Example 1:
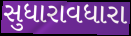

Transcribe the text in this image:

સુધારાવધારા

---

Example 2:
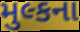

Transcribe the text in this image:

મુલ્કના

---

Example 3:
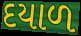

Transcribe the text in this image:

દયાળ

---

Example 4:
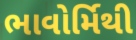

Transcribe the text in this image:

ભાવોર્મિથી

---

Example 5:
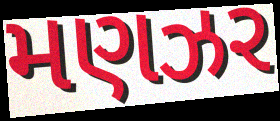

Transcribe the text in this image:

મણઝર